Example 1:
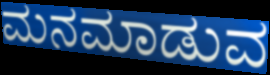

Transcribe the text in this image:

ಮನಮಾಡುವ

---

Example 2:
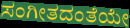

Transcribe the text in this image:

ಸಂಗೀತದಂತೆಯೇ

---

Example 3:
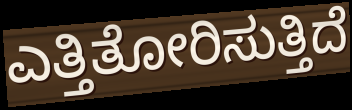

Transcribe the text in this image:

ಎತ್ತಿತೋರಿಸುತ್ತಿದೆ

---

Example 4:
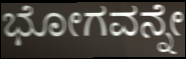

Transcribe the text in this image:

ಭೋಗವನ್ನೇ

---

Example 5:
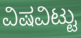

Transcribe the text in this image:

ವಿಷವಿಟ್ಟು